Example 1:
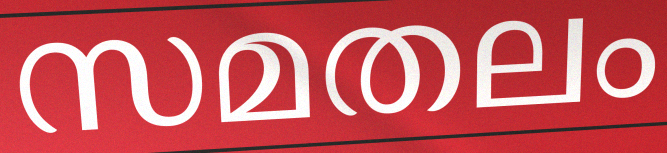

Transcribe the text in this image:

സമതലം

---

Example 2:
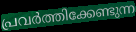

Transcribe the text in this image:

പ്രവർത്തിക്കേണ്ടുന്ന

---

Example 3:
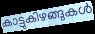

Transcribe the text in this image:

കാട്ടുകിഴങ്ങുകൾ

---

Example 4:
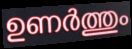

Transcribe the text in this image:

ഉണർത്തും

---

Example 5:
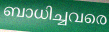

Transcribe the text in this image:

ബാധിച്ചവരെ